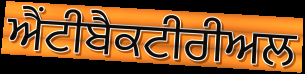
ਐਂਟੀਬੈਕਟੀਰੀਅਲ